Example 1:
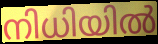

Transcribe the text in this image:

നിധിയിൽ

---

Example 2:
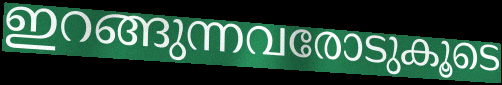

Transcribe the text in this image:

ഇറങ്ങുന്നവരോടുകൂടെ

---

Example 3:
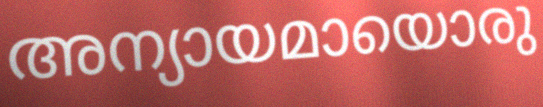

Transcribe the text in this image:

അന്യായമായൊരു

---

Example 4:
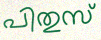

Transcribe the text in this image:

പിതുസ്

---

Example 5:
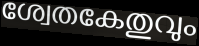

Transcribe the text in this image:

ശ്വേതകേതുവും